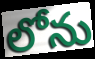
లోను